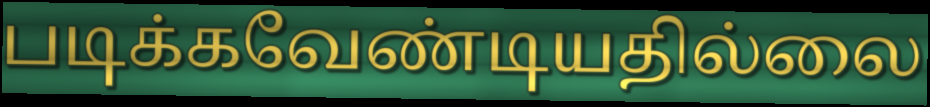
படிக்கவேண்டியதில்லை